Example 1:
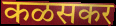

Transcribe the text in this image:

कळसकर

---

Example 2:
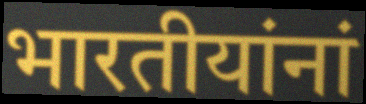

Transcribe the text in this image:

भारतीयांनां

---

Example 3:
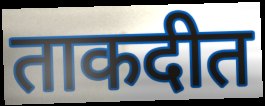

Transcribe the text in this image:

ताकदीत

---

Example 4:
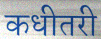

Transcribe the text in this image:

कधीतरी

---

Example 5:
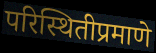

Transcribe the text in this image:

परिस्थितीप्रमाणे